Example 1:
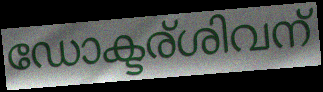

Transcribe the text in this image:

ഡോക്ടര്ശിവന്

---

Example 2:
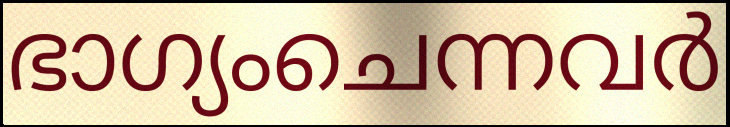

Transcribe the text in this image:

ഭാഗ്യംചെന്നവർ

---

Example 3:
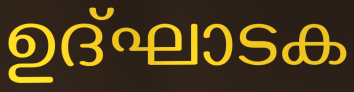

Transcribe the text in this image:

ഉദ്ഘാടക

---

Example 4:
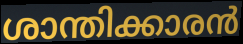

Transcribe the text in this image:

ശാന്തിക്കാരൻ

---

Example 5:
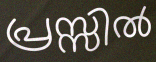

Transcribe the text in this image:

പ്രസ്സിൽ